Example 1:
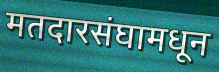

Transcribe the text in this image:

मतदारसंघामधून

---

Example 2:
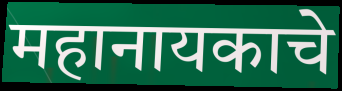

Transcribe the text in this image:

महानायकाचे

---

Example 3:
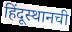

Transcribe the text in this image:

हिंदूस्थानची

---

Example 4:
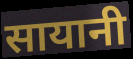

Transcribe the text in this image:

सायानी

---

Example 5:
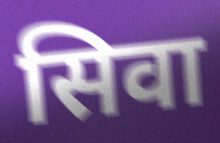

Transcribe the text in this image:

सिवा